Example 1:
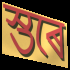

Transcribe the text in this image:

স্তৰে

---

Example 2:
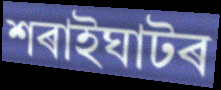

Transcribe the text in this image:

শৰাইঘাটৰ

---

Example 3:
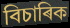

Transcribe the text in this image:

বিচাৰিক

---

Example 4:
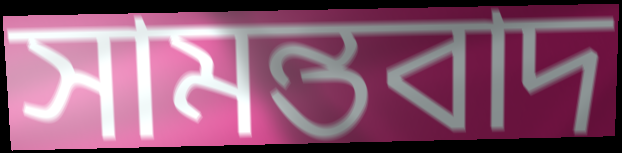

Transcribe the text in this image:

সামন্তবাদ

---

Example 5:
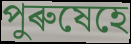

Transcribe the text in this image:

পুৰুষেহে